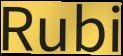
Rubi